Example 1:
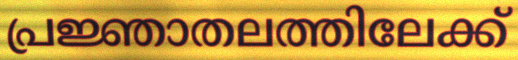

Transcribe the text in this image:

പ്രജ്ഞാതലത്തിലേക്ക്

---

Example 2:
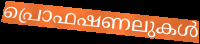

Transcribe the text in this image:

പ്രൊഫഷണലുകൾ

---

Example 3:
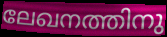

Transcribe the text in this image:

ലേഖനത്തിനു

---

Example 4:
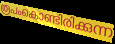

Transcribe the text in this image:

രൂപംകൊണ്ടിരിക്കുന്ന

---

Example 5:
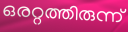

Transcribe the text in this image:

ഒരറ്റത്തിരുന്ന്